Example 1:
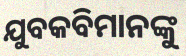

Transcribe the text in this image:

ଯୁବକବିମାନଙ୍କୁ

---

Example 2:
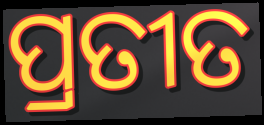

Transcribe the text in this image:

ପ୍ରତୀତ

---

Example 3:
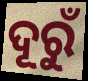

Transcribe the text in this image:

ଦୂରୁଁ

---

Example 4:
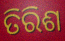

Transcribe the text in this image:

ତିରିଶ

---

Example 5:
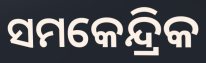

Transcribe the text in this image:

ସମକେନ୍ଦ୍ରିକ